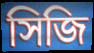
সিজি